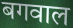
बगवाल